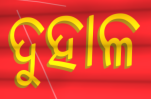
ଦୁହାଳ